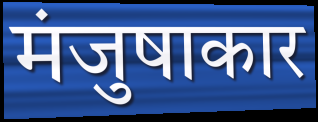
मंजुषाकार